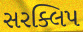
સરક્લિપ